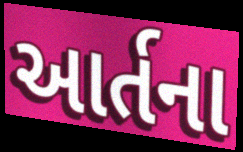
આર્તના